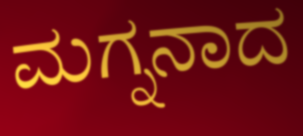
ಮಗ್ನನಾದ